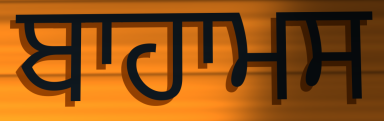
ਬਾਹਾਮਸ